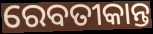
ରେବତୀକାନ୍ତ